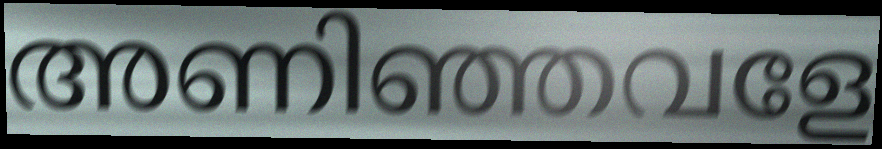
അണിഞ്ഞവളേ